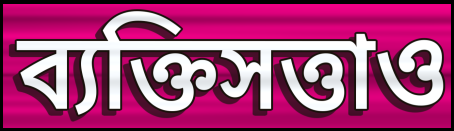
ব্যক্তিসত্তাও